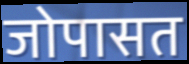
जोपासत